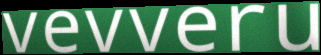
vevveru